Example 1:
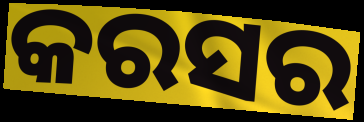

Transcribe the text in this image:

କରସର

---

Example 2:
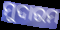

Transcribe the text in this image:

ମୁଦାରମ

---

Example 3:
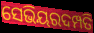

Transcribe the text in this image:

ସେଭିୟରଦମ୍ପତି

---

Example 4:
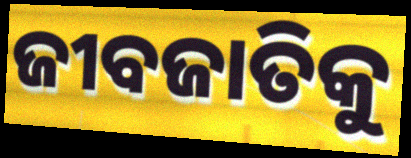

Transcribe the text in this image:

ଜୀବଜାତିକୁ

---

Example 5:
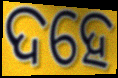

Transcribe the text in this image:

ଦହେ